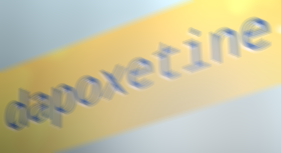
dapoxetine